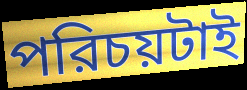
পরিচয়টাই